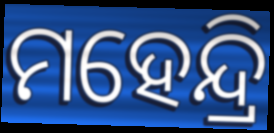
ମହେନ୍ଦ୍ରି